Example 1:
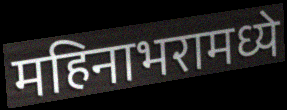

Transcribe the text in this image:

महिनाभरामध्ये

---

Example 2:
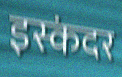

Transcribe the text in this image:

इस्कंदर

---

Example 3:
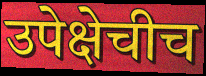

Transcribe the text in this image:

उपेक्षेचीच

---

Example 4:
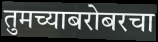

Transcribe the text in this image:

तुमच्याबरोबरचा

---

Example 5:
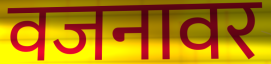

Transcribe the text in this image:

वजनावर